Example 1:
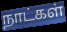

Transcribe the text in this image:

நாட்கள்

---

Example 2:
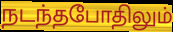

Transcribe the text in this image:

நடந்தபோதிலும்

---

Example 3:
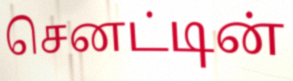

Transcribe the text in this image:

செனட்டின்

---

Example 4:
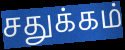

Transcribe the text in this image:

சதுக்கம்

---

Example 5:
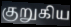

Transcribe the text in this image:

குறுகிய